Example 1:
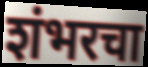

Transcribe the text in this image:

शंभरचा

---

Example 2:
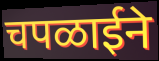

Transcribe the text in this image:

चपळाईने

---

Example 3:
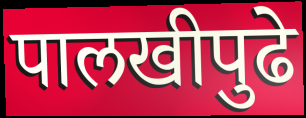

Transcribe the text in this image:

पालखीपुढे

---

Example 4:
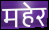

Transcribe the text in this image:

महेर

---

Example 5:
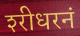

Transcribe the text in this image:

श्रीधरनं